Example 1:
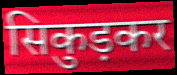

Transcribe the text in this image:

सिकुड़कर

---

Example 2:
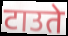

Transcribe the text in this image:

टाउते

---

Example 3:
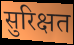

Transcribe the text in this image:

सुरिक्षत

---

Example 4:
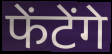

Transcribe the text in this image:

फेंटेंगे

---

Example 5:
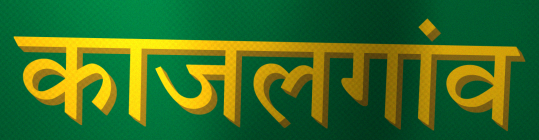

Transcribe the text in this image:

काजलगांव